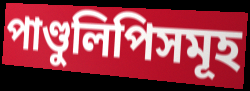
পাণ্ডুলিপিসমূহ